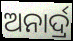
ଅନାର୍ଦ୍ର